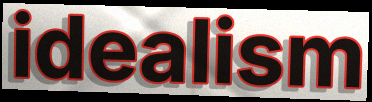
idealism